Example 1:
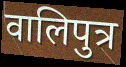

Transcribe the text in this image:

वालिपुत्र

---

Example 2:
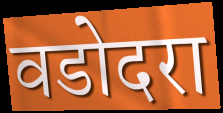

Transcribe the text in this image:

वडोदरा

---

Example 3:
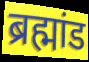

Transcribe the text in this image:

ब्रह्मांड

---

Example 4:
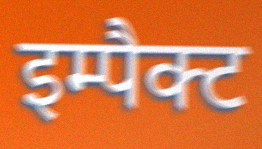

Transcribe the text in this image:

इम्पैक्ट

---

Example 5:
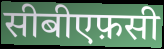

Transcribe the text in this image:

सीबीएफ़सी